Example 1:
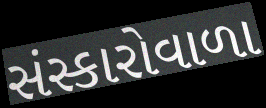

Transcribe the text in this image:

સંસ્કારોવાળા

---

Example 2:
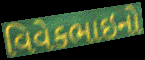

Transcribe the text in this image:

વિવેકભાઇનો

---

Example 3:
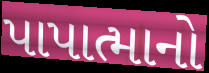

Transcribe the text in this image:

પાપાત્માનો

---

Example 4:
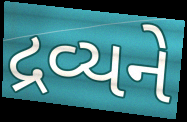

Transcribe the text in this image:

દ્રવ્યને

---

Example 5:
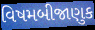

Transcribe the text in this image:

વિષમબીજાણુક